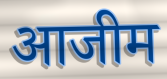
आजीम